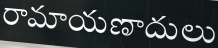
రామాయణాదులు